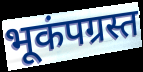
भूकंपग्रस्त